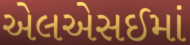
એલએસઈમાં